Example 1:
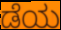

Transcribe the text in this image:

ಡೆಯ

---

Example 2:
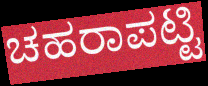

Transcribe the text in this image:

ಚಹರಾಪಟ್ಟಿ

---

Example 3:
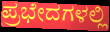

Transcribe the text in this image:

ಪ್ರಭೇದಗಳಲ್ಲಿ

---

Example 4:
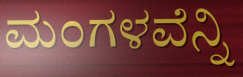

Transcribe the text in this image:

ಮಂಗಳವೆನ್ನಿ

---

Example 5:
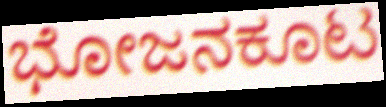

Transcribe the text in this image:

ಭೋಜನಕೂಟ